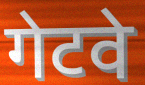
गेटवे